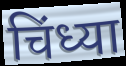
चिंध्या